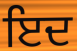
ਇਦ